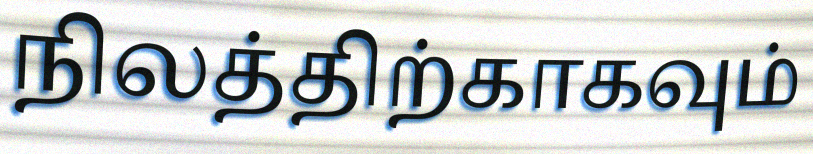
நிலத்திற்காகவும்